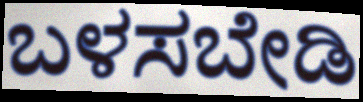
ಬಳಸಬೇಡಿ